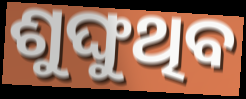
ଶୁଙ୍ଘୁଥିବ